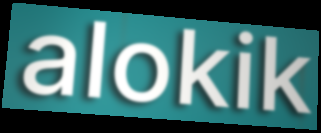
alokik